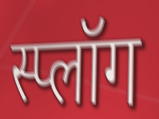
स्प्लॉग